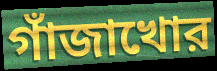
গাঁজাখোর